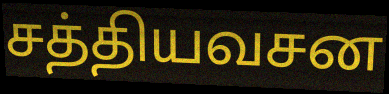
சத்தியவசன